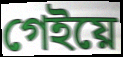
গেইয়ে